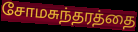
சோமசுந்தரத்தை